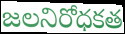
జలనిరోధకత